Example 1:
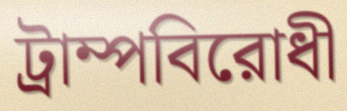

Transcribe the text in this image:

ট্রাম্পবিরোধী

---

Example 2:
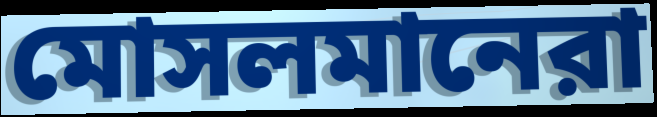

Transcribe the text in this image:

মোসলমানেরা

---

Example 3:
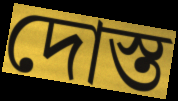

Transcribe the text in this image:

দোস্ত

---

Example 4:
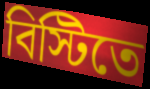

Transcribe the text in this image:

বিস্টিতে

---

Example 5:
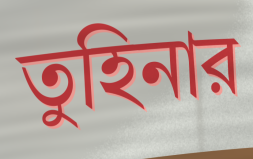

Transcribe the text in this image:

তুহিনার